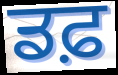
ਡਫ਼